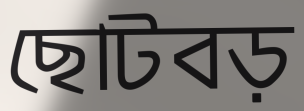
ছোটবড়